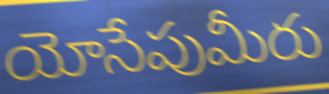
యోసేపుమీరు